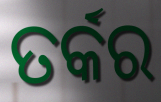
ତର୍କର